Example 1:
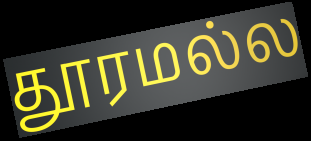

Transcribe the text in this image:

தூரமல்ல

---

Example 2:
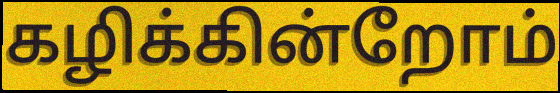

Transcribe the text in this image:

கழிக்கின்றோம்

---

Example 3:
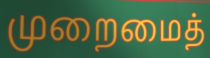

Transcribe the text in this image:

முறைமைத்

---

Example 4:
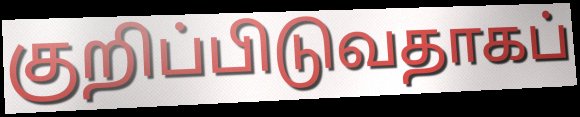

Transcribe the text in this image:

குறிப்பிடுவதாகப்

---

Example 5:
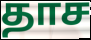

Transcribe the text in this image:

தாச